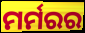
ମର୍ମରର